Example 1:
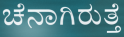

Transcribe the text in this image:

ಚೆನಾಗಿರುತ್ತೆ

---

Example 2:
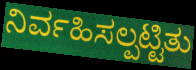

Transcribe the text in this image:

ನಿರ್ವಹಿಸಲ್ಪಟ್ಟಿತು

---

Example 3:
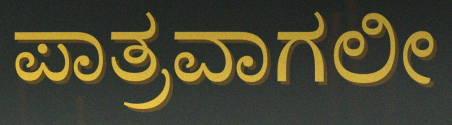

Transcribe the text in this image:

ಪಾತ್ರವಾಗಲೀ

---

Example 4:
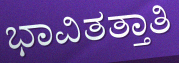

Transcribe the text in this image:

ಭಾವಿತತ್ತಾತಿ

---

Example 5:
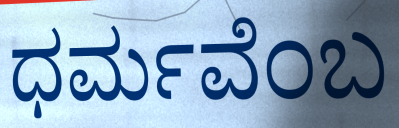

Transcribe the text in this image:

ಧರ್ಮವೆಂಬ